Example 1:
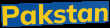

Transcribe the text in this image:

Pakstan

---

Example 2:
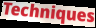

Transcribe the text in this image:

Techniques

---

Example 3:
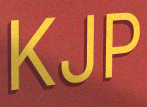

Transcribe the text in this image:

KJP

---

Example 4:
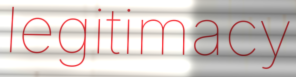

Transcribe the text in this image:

legitimacy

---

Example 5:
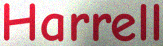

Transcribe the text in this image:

Harrell